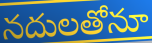
నదులతోనూ